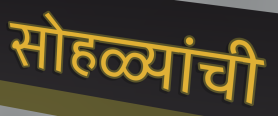
सोहळ्यांची